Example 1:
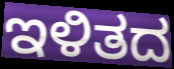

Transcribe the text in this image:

ಇಳಿತದ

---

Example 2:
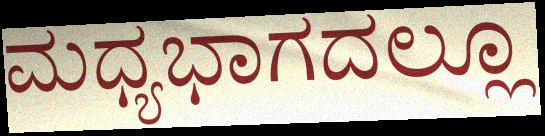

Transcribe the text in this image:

ಮಧ್ಯಭಾಗದಲ್ಲೂ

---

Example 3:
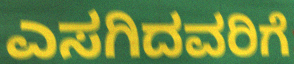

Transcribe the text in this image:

ಎಸಗಿದವರಿಗೆ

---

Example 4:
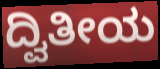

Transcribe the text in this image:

ದ್ವಿತೀಯ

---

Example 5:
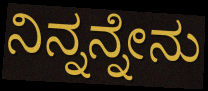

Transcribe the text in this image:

ನಿನ್ನನ್ನೇನು